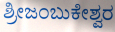
ಶ್ರೀಜಂಬುಕೇಶ್ವರ